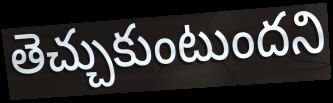
తెచ్చుకుంటుందని